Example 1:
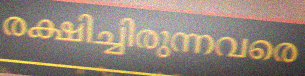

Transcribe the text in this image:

രക്ഷിച്ചിരുന്നവരെ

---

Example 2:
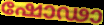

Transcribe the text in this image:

ഷോഢാ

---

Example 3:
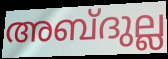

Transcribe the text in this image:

അബ്ദുല്ല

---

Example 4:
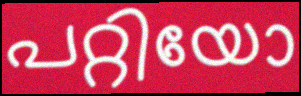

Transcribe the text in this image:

പറ്റിയോ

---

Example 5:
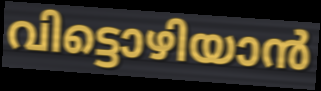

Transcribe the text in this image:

വിട്ടൊഴിയാൻ